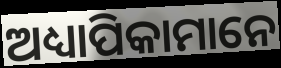
ଅଧ୍ୟାପିକାମାନେ